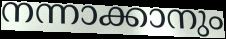
നന്നാക്കാനും